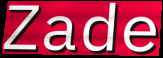
Zade